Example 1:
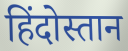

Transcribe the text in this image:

हिंदोस्तान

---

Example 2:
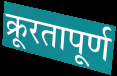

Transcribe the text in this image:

क्रूरतापूर्ण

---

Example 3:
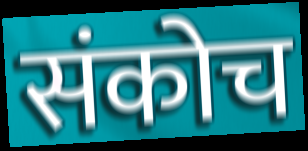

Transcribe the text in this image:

संकोच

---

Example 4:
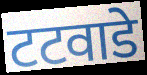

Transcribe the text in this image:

टटवाडे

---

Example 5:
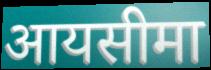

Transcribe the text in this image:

आयसीमा